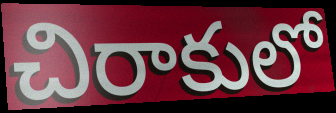
చిరాకులో